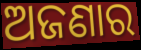
ଅଜଣାର